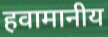
हवामानीय